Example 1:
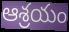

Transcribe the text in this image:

ఆశ్రయం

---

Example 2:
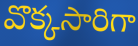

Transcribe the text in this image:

వొక్కసారిగా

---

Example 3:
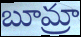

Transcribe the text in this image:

బూమ్రా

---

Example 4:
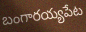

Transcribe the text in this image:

బంగారయ్యపేట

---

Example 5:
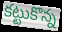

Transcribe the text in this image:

కట్టుకొన్న